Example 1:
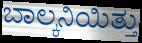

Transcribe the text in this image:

ಬಾಲ್ಕನಿಯಿತ್ತು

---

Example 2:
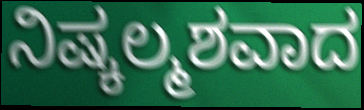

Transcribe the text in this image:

ನಿಷ್ಕಲ್ಮಶವಾದ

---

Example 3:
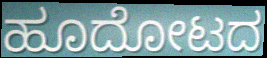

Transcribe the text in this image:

ಹೂದೋಟದ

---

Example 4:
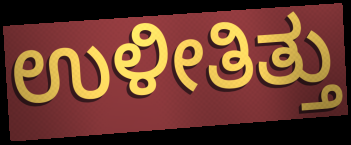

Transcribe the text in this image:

ಉಳೀತಿತ್ತು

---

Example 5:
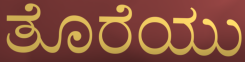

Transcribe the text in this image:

ತೊರೆಯು